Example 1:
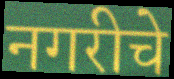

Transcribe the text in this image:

नगरीचे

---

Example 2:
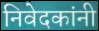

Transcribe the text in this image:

निवेदकांनी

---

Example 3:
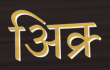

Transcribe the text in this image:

अिक्र्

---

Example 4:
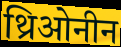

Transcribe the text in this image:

थ्रिओनीन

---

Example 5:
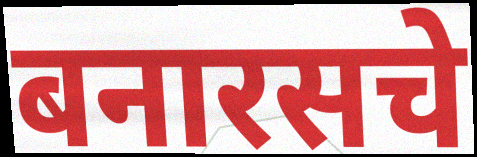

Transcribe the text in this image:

बनारसचे